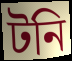
টনি